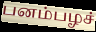
பனம்பழச்